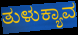
ತುಳುಕ್ಯಾವ